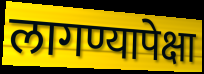
लागण्यापेक्षा